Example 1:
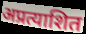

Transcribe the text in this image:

अप्रत्याशित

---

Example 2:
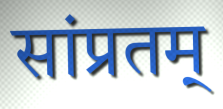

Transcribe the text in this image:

सांप्रतम्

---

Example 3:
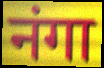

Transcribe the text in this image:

नंगा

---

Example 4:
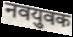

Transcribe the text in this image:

नवयुवक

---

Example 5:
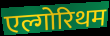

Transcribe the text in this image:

एल्गोरिथम